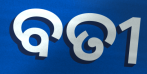
ବତୀ